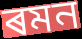
ৰমন